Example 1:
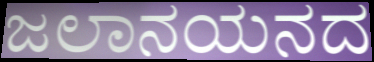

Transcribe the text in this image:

ಜಲಾನಯನದ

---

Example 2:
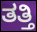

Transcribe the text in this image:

ತತ್ತಿ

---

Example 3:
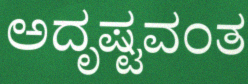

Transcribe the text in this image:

ಅದೃಷ್ಟವಂತ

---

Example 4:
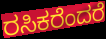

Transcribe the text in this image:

ರಸಿಕರೆಂದರೆ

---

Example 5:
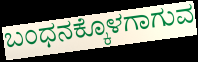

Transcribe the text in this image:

ಬಂಧನಕ್ಕೊಳಗಾಗುವ